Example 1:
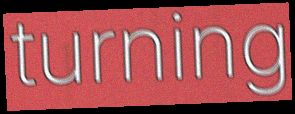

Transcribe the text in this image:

turning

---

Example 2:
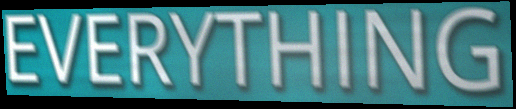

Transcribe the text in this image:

EVERYTHING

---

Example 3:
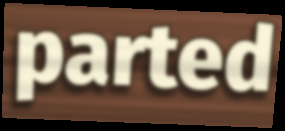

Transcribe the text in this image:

parted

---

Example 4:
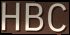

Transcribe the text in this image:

HBC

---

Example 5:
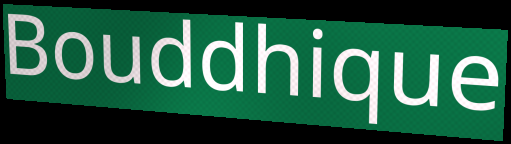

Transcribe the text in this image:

Bouddhique